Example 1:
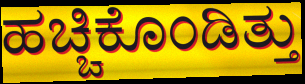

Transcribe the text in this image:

ಹಚ್ಚಿಕೊಂಡಿತ್ತು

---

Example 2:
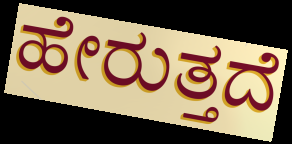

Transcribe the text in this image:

ಹೇರುತ್ತದೆ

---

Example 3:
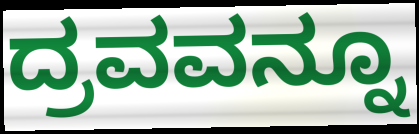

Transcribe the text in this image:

ದ್ರವವನ್ನೂ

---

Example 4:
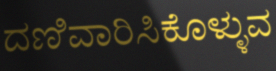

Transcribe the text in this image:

ದಣಿವಾರಿಸಿಕೊಳ್ಳುವ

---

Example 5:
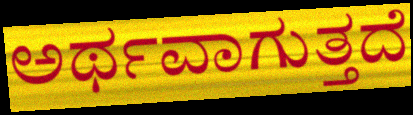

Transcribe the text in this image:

ಅರ್ಥವಾಗುತ್ತದೆ